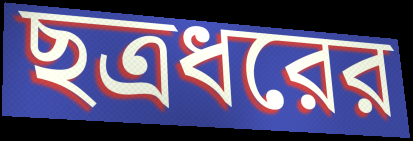
ছত্রধরের